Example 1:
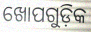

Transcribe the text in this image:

ଖୋପଗୁଡ଼ିକ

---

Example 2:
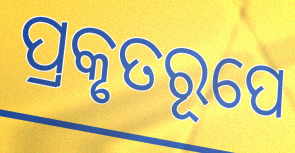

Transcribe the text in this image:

ପ୍ରକୃତରୂପେ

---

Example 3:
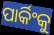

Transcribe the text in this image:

ପାର୍କିଂକୁ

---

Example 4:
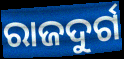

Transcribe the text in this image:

ରାଜଦୁର୍ଗ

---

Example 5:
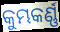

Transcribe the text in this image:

କୁମ୍ଭକର୍ଣ୍ଣ